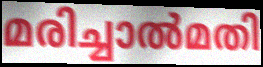
മരിച്ചാൽമതി